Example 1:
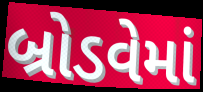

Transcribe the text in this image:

બ્રોડવેમાં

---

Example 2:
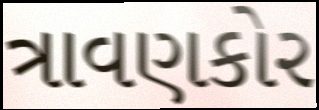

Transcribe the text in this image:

ત્રાવણકોર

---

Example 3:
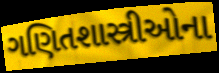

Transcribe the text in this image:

ગણિતશાસ્ત્રીઓના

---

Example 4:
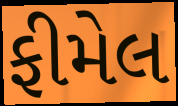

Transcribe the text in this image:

ફીમેલ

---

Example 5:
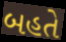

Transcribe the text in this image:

બહતે